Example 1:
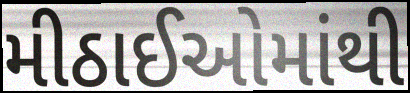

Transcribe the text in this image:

મીઠાઈઓમાંથી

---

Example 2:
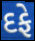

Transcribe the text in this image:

દફે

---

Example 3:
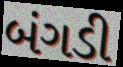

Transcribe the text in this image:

બંગડી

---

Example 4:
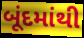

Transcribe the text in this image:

બૂંદમાંથી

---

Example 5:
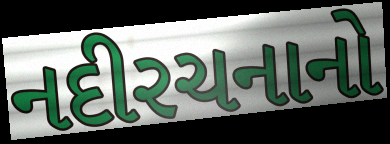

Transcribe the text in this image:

નદીરચનાનો